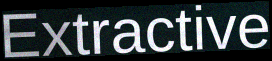
Extractive